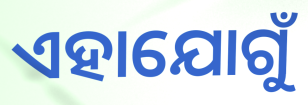
ଏହାଯୋଗୁଁ